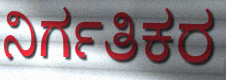
ನಿರ್ಗತಿಕರ